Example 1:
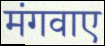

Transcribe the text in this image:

मंगवाए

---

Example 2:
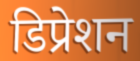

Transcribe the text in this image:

डिप्रेशन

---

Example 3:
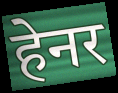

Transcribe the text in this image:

हेनर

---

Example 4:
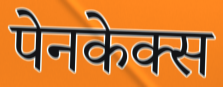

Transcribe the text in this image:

पेनकेक्स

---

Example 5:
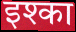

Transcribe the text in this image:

इश्का